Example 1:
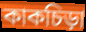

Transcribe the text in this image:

কাকচিড়া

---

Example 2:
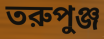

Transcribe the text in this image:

তরুপুঞ্জ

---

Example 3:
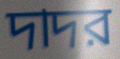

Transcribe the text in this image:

দাদর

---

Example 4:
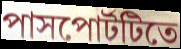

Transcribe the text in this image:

পাসপোর্টটিতে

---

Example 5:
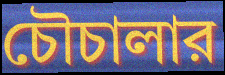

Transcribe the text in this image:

চৌচালার